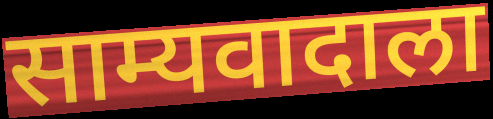
साम्यवादाला